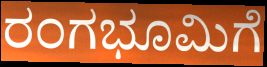
ರಂಗಭೂಮಿಗೆ